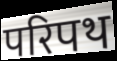
परिपथ